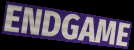
ENDGAME